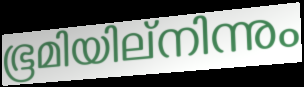
ഭൂമിയില്നിന്നും